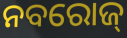
ନବରୋଜ୍